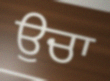
ਉਚਾ